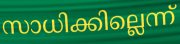
സാധിക്കില്ലെന്ന്